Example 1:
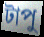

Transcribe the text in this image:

টাপু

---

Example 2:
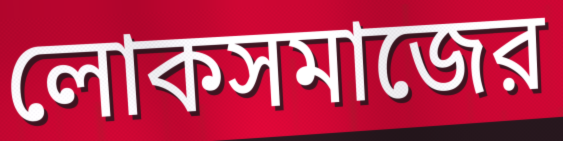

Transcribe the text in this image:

লোকসমাজের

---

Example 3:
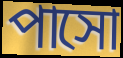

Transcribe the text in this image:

পাসো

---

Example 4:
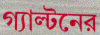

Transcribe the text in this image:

গ্যাল্টনের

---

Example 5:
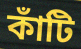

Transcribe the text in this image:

কাঁটি